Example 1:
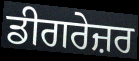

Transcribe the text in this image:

ਡੀਗਰੇਜ਼ਰ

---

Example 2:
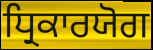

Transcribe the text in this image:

ਧ੍ਰਿਕਾਰਯੋਗ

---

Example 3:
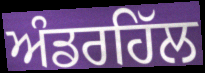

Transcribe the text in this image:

ਅੰਡਰਹਿੱਲ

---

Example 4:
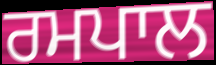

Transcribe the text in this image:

ਰਮਪਾਲ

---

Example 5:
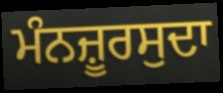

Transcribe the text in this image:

ਮੰਨਜ਼ੂਰਸੁਦਾ